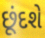
છૂંદશે